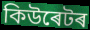
কিউৰেটৰ